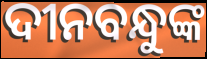
ଦୀନବନ୍ଧୁଙ୍କ